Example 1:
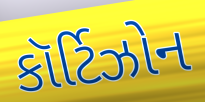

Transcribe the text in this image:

કૉર્ટિઝોન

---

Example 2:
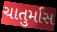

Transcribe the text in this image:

ચાતુર્માસ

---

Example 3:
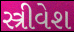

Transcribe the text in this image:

સ્ત્રીવેશ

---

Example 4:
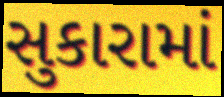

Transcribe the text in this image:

સુકારામાં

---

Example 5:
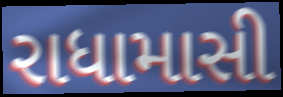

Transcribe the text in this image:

રાધામાસી